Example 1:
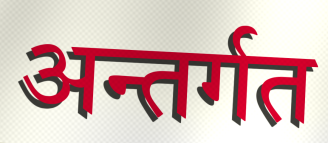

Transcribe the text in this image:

अन्‍तर्गत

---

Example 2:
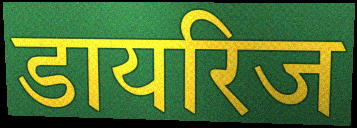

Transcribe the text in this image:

डायरिज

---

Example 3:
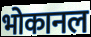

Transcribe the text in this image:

भोकानल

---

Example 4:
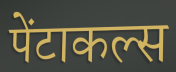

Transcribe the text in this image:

पेंटाकल्स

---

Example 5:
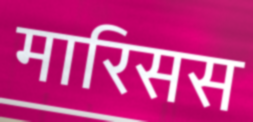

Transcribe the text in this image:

मारिसस